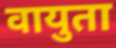
वायुता